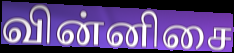
வின்னிசை